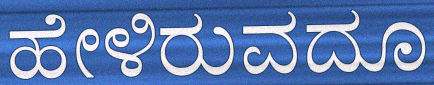
ಹೇಳಿರುವದೂ